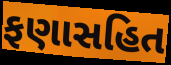
ફણાસહિત